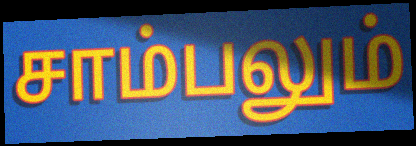
சாம்பலும்